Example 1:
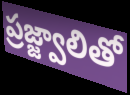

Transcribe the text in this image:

ప్రజ్జ్వాలితో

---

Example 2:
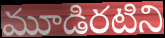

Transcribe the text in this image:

మూడిరటిని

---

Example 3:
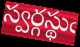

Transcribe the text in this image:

స్వర్గస్థుఁ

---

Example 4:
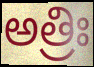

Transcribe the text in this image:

అత్రిః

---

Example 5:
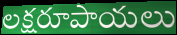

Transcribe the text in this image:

లక్షరూపాయలు